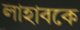
লাহাবকে